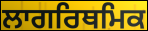
ਲਾਗਰਿਥਮਿਕ